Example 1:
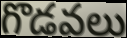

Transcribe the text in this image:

గొడవలు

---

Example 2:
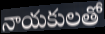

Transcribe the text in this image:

నాయకులతో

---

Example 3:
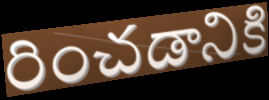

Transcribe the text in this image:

రించడానికి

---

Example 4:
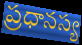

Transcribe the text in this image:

ప్రధానస్య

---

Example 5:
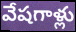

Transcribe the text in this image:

వేషగాళ్లు